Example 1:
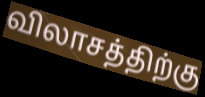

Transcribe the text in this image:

விலாசத்திற்கு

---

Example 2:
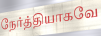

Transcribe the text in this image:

நேர்த்தியாகவே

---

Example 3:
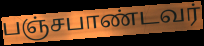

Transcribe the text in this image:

பஞ்சபாண்டவர்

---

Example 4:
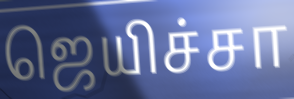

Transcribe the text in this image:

ஜெயிச்சா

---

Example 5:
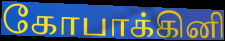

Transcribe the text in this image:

கோபாக்கினி